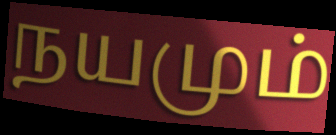
நயமும்